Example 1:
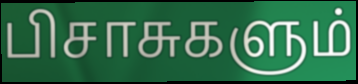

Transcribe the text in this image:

பிசாசுகளும்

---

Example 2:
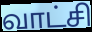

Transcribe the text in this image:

வாட்சி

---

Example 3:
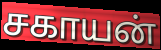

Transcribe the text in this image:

சகாயன்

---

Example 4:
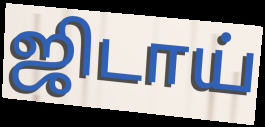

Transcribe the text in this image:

ஜிடாய்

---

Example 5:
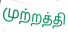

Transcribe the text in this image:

முற்றத்தி